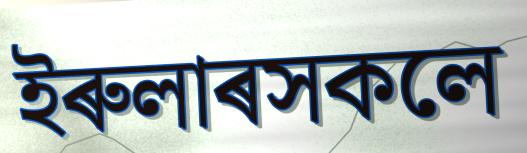
ইৰুলাৰসকলে